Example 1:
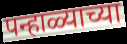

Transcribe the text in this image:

पन्हाळ्याच्या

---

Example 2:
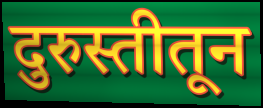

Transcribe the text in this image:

दुरुस्तीतून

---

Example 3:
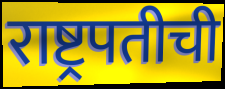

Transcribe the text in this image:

राष्ट्रपतीची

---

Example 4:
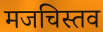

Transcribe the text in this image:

मजचिस्तव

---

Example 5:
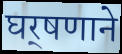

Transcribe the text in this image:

घर्षणाने